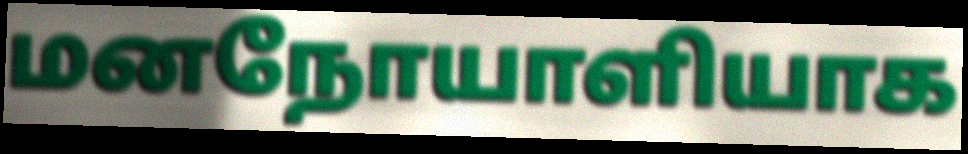
மனநோயாளியாக